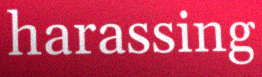
harassing